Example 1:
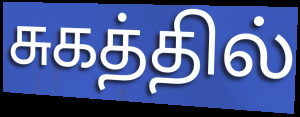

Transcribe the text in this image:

சுகத்தில்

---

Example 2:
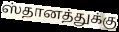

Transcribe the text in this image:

ஸ்தானத்துக்கு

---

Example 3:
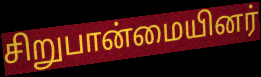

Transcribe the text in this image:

சிறுபான்மையினர்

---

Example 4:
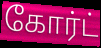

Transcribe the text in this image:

கோர்ட்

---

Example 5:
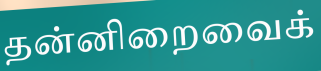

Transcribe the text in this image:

தன்னிறைவைக்